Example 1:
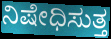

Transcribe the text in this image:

ನಿಷೇಧಿಸುತ್ತ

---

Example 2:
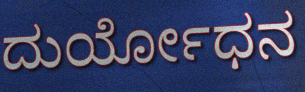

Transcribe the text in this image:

ದುರ್ಯೋಧನ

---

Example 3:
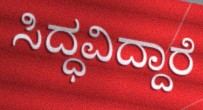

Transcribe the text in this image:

ಸಿದ್ಧವಿದ್ದಾರೆ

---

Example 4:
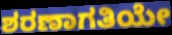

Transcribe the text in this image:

ಶರಣಾಗತಿಯೇ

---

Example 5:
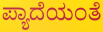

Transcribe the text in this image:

ಪ್ಯಾದೆಯಂತೆ